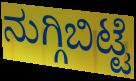
ನುಗ್ಗಿಬಿಟ್ಟೆ